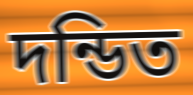
দন্ডিত